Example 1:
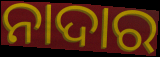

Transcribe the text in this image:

ନାଦାର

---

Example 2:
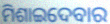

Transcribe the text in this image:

ମିଶାଇଦେବାର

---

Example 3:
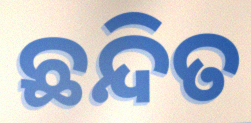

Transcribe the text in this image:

ଛନ୍ଦିତ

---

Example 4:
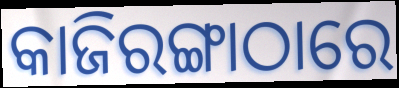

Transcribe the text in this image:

କାଜିରଙ୍ଗାଠାରେ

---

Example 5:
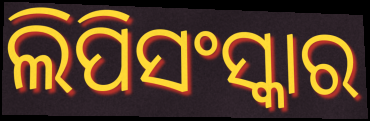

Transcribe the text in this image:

ଲିପିସଂସ୍କାର